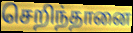
செறிந்தானை